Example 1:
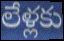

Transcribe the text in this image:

లేళ్లకు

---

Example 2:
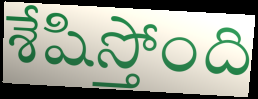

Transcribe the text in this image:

శేషిస్తోంది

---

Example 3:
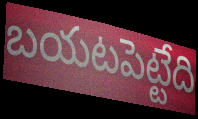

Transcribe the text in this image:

బయటపెట్టేది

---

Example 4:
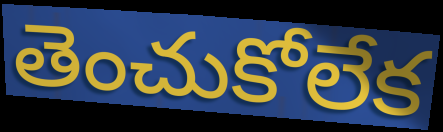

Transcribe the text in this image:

తెంచుకోలేక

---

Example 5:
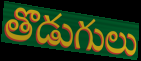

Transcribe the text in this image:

తొడుగులు